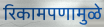
रिकामपणामुळे